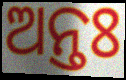
ଅନ୍ତଃ